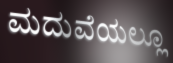
ಮದುವೆಯಲ್ಲೂ